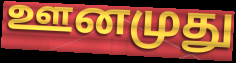
ஊனமுது